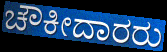
ಚೌಕೀದಾರರು